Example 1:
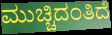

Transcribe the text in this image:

ಮುಚ್ಚಿದಂತಿದೆ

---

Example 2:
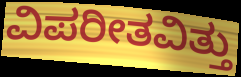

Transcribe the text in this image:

ವಿಪರೀತವಿತ್ತು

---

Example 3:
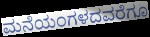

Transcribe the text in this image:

ಮನೆಯಂಗಳದವರೆಗೂ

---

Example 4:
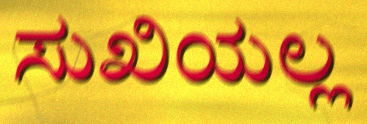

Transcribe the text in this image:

ಸುಖಿಯಲ್ಲ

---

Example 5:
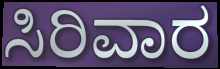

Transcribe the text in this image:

ಸಿರಿವಾರ